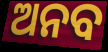
ଅନବ